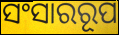
ସଂସାରରୂପ